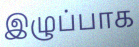
இழுப்பாக